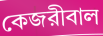
কেজরীবাল